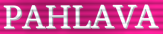
PAHLAVA